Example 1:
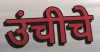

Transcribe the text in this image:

उंचीचे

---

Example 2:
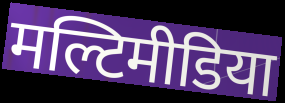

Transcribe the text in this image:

मल्टिमीडिया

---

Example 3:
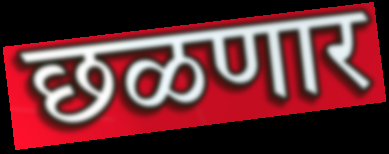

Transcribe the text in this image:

छळणार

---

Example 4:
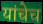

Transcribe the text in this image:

यांचेच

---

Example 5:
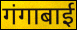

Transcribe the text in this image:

गंगाबाई